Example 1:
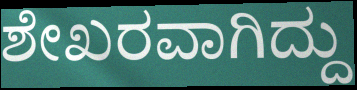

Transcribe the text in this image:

ಶೇಖರವಾಗಿದ್ದು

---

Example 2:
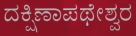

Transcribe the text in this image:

ದಕ್ಷಿಣಾಪಥೇಶ್ವರ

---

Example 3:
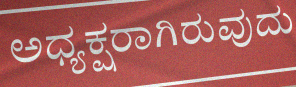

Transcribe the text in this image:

ಅಧ್ಯಕ್ಷರಾಗಿರುವುದು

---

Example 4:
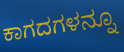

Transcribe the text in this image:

ಕಾಗದಗಳನ್ನೂ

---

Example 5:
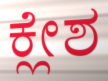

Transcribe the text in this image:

ಕ್ಲೇಶ